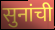
सुनांची